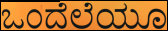
ಒಂದೆಲೆಯೂ